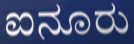
ಐನೂರು